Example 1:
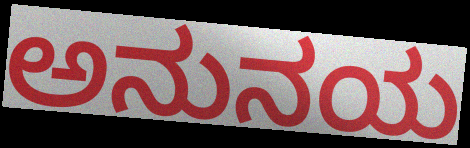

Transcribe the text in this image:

ಅನುನಯ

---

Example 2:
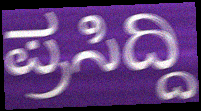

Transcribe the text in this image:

ಪ್ರಸಿದ್ದಿ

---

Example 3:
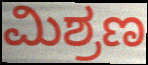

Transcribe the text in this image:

ಮಿಶ್ರಣ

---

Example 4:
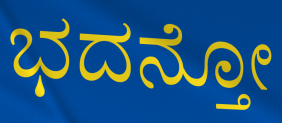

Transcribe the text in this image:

ಭದನ್ತೋ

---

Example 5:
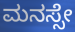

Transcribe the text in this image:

ಮನಸ್ಸೇ